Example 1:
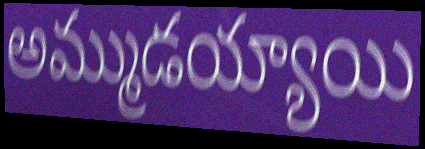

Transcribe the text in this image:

అమ్ముడయ్యాయి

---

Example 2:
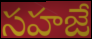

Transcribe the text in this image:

సహజే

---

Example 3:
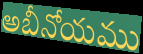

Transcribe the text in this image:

అబీనోయము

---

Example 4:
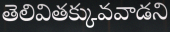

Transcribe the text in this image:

తెలివితక్కువవాడని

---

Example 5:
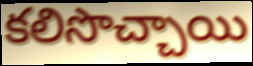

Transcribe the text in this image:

కలిసొచ్చాయి